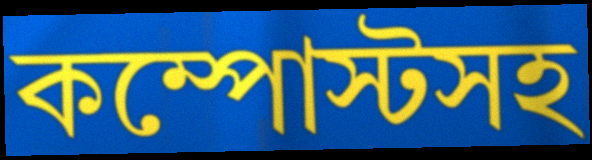
কম্পোস্টসহ